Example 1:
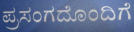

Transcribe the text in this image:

ಪ್ರಸಂಗದೊಂದಿಗೆ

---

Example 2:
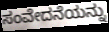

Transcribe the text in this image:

ಸಂವೇದನೆಯನ್ನು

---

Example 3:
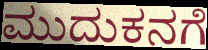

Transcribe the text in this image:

ಮುದುಕನಗೆ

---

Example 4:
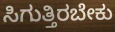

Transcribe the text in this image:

ಸಿಗುತ್ತಿರಬೇಕು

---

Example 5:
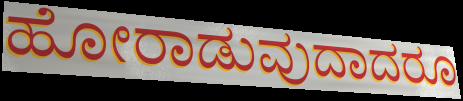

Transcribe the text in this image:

ಹೋರಾಡುವುದಾದರೂ